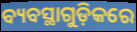
ବ୍ୟବସ୍ଥାଗୁଡ଼ିକରେ